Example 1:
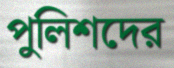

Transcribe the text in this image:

পুলিশদের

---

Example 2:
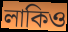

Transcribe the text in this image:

লাকিও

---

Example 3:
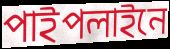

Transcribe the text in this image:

পাইপলাইনে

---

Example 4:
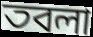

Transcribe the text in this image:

তবলা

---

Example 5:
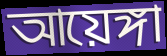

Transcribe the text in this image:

আয়েঙ্গা